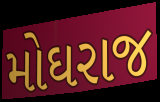
મોઘરાજ